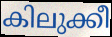
കിലുക്കീ